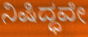
ನಿಷಿದ್ಧವೇ